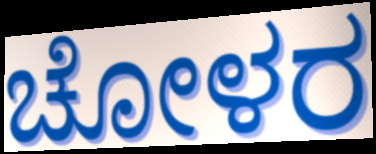
ಚೋಳರ